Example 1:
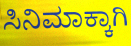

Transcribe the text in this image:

ಸಿನಿಮಾಕ್ಕಾಗಿ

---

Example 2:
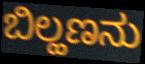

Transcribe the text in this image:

ಬಿಲ್ಹಣನು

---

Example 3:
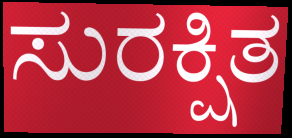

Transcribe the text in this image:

ಸುರಕ್ಷಿತ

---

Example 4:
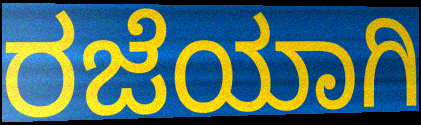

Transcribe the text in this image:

ರಜೆಯಾಗಿ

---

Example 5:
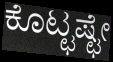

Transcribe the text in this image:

ಕೊಟ್ಟಷ್ಟೇ